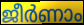
ജീർണാം